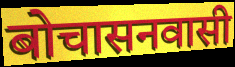
बोचासनवासी